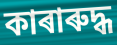
কাৰাৰুদ্ধ